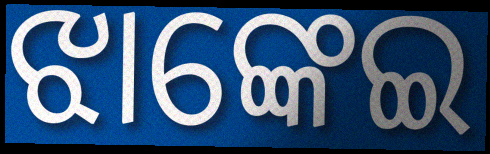
ଝାଙ୍କେଇ